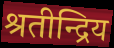
श्रतीन्द्रिय